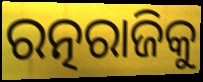
ରତ୍ନରାଜିକୁ